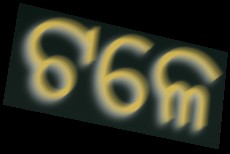
ଟଳେ